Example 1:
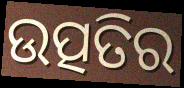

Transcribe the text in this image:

ଉତ୍ପତିର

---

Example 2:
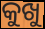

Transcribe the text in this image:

କୁଖୁ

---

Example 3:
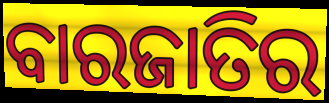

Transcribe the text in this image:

ବାରଜାତିର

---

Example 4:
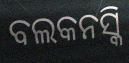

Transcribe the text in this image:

ବଲକନସ୍କି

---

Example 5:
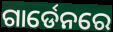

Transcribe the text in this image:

ଗାର୍ଡେନରେ